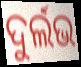
ଦୁର୍ଲଭ